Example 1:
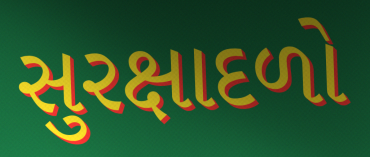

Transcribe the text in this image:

સુરક્ષાદળો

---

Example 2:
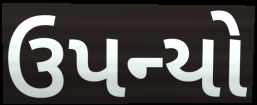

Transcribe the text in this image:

ઉપન્યો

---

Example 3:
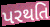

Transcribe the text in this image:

પરથતિ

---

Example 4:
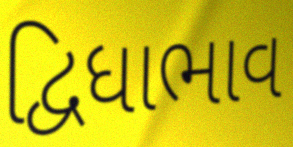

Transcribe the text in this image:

દ્વિધાભાવ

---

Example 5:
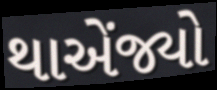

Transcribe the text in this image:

થાએંજ્યો